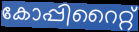
കോപ്പിറൈറ്റ്